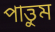
পাত্তুম